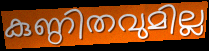
കുണ്ഠിതവുമില്ല